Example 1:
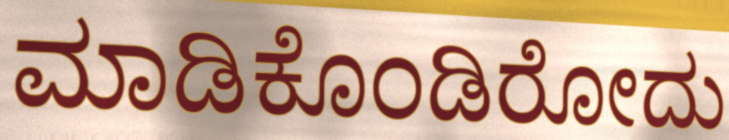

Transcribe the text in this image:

ಮಾಡಿಕೊಂಡಿರೋದು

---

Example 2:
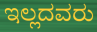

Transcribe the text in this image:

ಇಲ್ಲದವರು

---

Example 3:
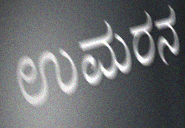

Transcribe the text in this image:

ಉಮರನ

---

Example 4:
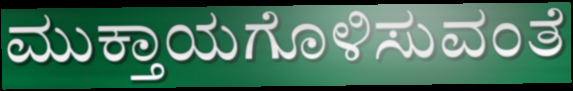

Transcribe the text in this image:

ಮುಕ್ತಾಯಗೊಳಿಸುವಂತೆ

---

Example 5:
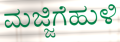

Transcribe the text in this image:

ಮಜ್ಜಿಗೆಹುಳಿ